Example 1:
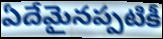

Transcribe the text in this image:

ఏదేమైనప్పటికీ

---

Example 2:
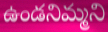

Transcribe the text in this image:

ఉండనిమ్మని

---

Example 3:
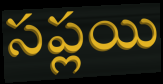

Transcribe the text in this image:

సప్లయి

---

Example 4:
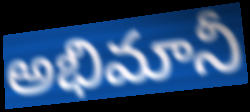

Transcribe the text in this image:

అభిమానీ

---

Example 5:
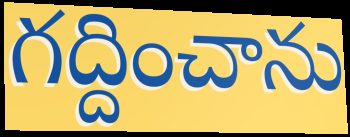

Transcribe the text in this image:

గద్దించాను